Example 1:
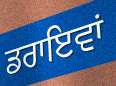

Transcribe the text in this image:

ਡਰਾਇਵਾਂ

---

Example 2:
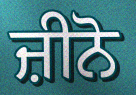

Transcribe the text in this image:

ਜ਼ੀਨੋ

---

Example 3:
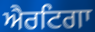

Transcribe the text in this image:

ਐਰਟਿਗਾ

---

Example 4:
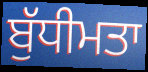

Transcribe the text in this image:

ਬੁੱਧੀਮਤਾ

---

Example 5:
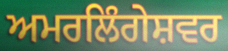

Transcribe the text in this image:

ਅਮਰਲਿੰਗੇਸ਼ਵਰ